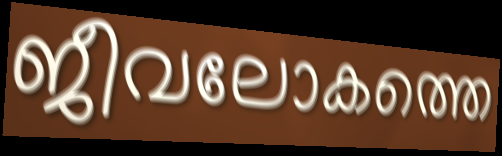
ജീവലോകത്തെ